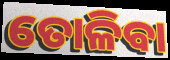
ତୋଳିବା